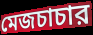
মেজচাচার